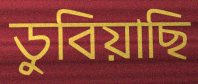
ডুবিয়াছি